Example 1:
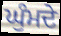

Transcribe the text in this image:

ਘੁੰਮਦੇ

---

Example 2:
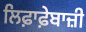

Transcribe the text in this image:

ਲਿਫ਼ਾਫ਼ੇਬਾਜ਼ੀ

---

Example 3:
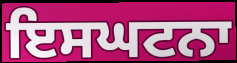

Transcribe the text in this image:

ਇਸਘਟਨਾ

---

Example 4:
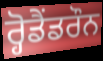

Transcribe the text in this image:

ਰ੍ਹੋਡੈਂਡਰੌਨ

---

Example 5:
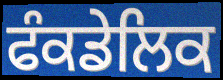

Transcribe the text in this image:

ਫੰਕਡੇਲਿਕ